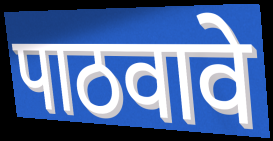
पाठवावे